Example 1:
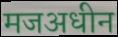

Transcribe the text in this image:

मजअधीन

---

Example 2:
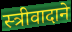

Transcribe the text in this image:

स्त्रीवादाने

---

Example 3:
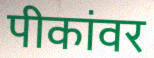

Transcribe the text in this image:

पीकांवर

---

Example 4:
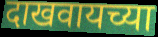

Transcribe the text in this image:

दाखवायच्या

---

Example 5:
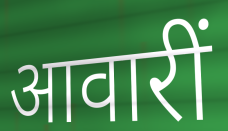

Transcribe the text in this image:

आवारीं